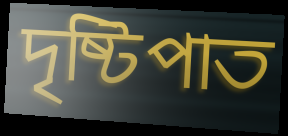
দৃষ্টিপাত